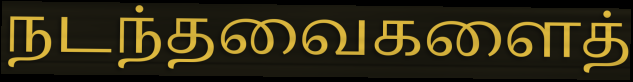
நடந்தவைகளைத்